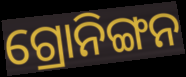
ଗ୍ରୋନିଙ୍ଗନ